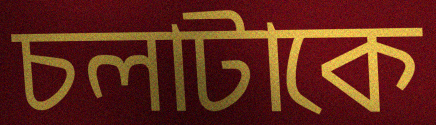
চলাটাকে